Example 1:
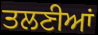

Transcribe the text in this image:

ਤਲਣੀਆਂ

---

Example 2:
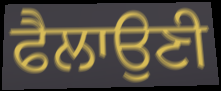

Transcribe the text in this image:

ਫੈਲਾਉਣੀ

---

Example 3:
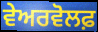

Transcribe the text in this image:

ਵੇਅਰਵੋਲਫ਼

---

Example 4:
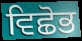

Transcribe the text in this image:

ਵਿਛੋਭ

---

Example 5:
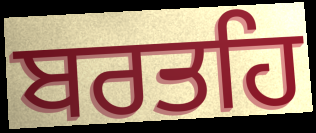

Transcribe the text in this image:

ਬਰਤਹਿ